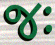
જઃ